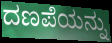
ದಣಪೆಯನ್ನು